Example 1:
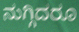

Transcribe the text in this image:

ನುಗ್ಗಿದರೂ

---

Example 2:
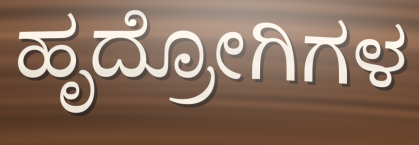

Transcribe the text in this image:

ಹೃದ್ರೋಗಿಗಳ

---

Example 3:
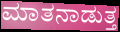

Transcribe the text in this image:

ಮಾತನಾಡುತ್ತ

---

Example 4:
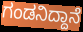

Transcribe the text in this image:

ಗಂಡನಿದ್ದಾನೆ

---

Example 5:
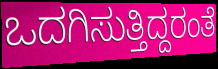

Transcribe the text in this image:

ಒದಗಿಸುತ್ತಿದ್ದರಂತೆ